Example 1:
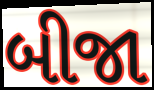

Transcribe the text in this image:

બીજા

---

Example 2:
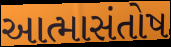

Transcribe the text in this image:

આત્માસંતોષ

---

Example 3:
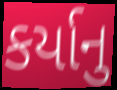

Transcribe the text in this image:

કર્યાનુ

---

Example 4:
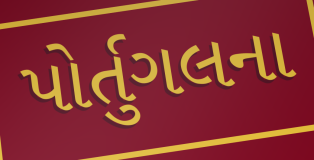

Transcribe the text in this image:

પોર્તુગલના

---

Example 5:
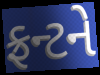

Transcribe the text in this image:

ફ્રન્ટને